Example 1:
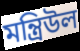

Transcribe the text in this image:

মন্ত্রিউল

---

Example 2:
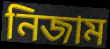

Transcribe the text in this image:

নিজাম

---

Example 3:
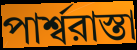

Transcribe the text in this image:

পার্শ্বরাস্তা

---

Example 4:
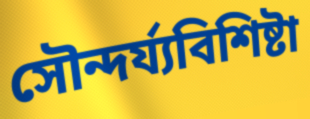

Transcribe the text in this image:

সৌন্দর্য্যবিশিষ্টা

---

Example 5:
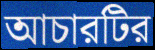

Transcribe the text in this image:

আচারটির